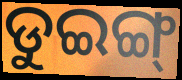
ଡୁଇଙ୍ଗ୍